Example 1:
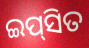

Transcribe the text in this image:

ଇପ୍‌ସିତ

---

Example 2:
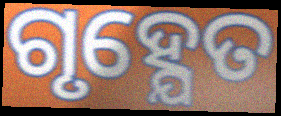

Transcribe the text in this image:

ଗୃହ୍ଯେତ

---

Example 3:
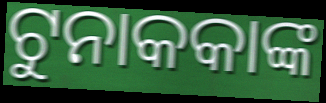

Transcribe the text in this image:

ଟୁନାକକାଙ୍କ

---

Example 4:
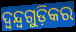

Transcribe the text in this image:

ଦ୍ୱନ୍ଦ୍ୱଗୁଡ଼ିକର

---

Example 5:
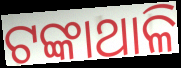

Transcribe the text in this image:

ଟଙ୍କାଥାଳି